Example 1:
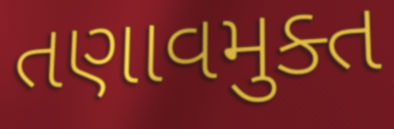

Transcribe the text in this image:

તણાવમુક્ત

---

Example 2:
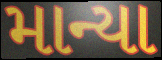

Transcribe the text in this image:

માન્યા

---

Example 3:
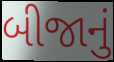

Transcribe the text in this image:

બીજાનું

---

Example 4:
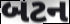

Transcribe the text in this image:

બટન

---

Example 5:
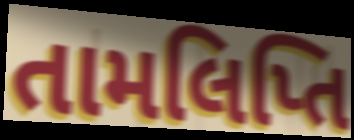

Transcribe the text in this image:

તામલિપ્તિ